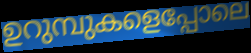
ഉറുമ്പുകളെപ്പോലെ